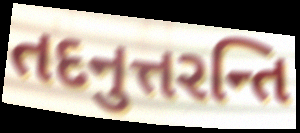
તદનુત્તરન્તિ